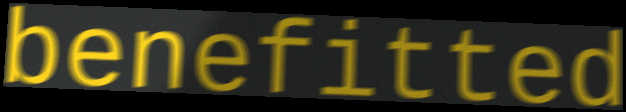
benefitted